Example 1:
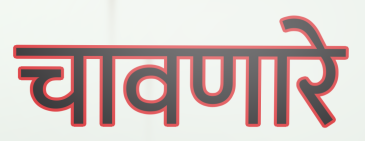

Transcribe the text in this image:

चावणारे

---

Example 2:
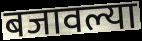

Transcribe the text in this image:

बजावल्या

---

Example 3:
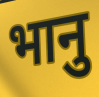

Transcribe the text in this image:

भानु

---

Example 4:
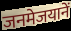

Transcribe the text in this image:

जनमेजयानें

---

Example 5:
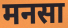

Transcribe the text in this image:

मनसा